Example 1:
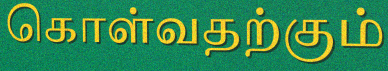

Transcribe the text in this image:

கொள்வதற்கும்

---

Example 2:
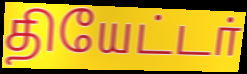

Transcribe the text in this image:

தியேட்டர்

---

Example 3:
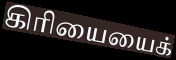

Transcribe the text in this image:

கிரியையைக்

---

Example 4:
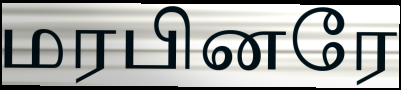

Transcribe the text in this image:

மரபினரே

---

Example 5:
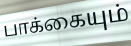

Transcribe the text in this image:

பாக்கையும்